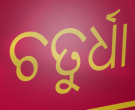
ଚତୁର୍ଧା